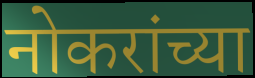
नोकरांच्या